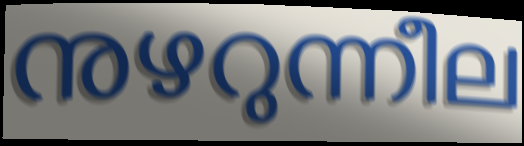
നുഴറുന്നീല